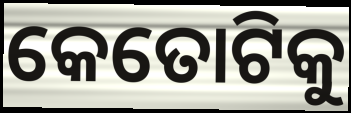
କେତୋଟିକୁ